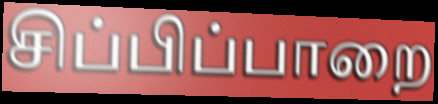
சிப்பிப்பாறை